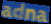
adna